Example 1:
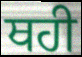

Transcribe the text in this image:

ਥਹੀ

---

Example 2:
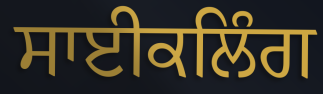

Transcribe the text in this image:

ਸਾਈਕਲਿੰਗ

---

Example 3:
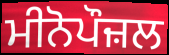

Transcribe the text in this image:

ਮੀਨੋਪੌਜ਼ਲ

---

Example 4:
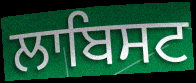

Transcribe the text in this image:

ਲਾਬਿਸਟ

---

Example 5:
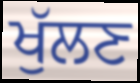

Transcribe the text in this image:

ਖੁੱਲਣ